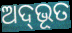
ଅଦ୍‌ଭୂତ